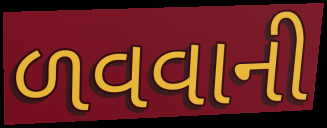
ળવવાની